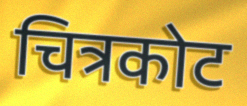
चित्रकोट